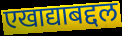
एखाद्याबद्दल